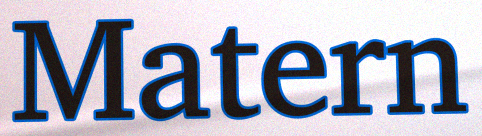
Matern